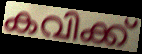
കവിക്ക്